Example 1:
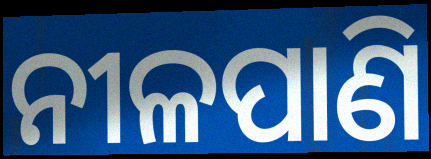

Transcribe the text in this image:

ନୀଳପାଣି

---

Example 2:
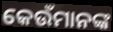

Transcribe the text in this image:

କେଉଁମାନଙ୍କ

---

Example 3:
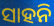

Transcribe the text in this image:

ସାହନି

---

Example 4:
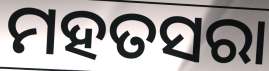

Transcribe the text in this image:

ମହତସରା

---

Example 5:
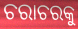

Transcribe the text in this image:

ଚରାଚରକୁ